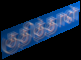
குதித்தாள்